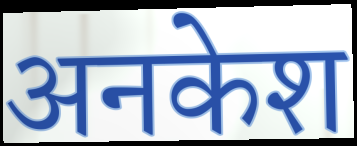
अनकेश